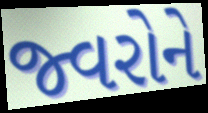
જ્વરોને